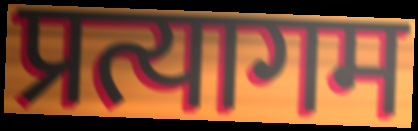
प्रत्यागम